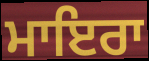
ਮਾਇਰਾ